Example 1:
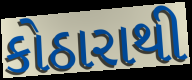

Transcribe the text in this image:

કોઠારાથી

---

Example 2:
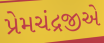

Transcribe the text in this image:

પ્રેમચંદ્રજીએ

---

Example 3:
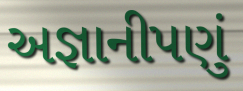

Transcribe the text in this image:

અજ્ઞાનીપણું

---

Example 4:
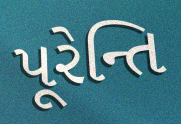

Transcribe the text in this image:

પૂરેન્તિ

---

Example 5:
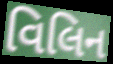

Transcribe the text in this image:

વિલિન